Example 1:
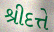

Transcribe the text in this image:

શ્રીદત્તે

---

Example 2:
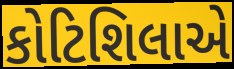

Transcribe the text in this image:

કોટિશિલાએ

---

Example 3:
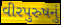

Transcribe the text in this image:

વીરપુરુષનું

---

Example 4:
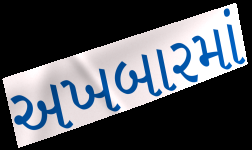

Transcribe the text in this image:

અખબારમાં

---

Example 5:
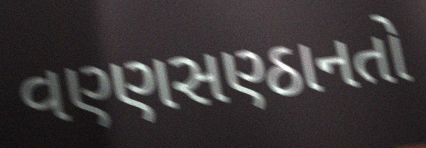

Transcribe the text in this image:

વણ્ણસણ્ઠાનતો